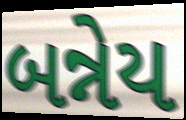
બન્નેય